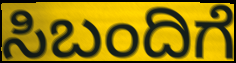
ಸಿಬಂದಿಗೆ